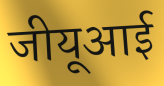
जीयूआई